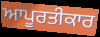
ਆਪੂਰਤੀਕਾਰ